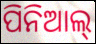
ପିନିଆଲ୍